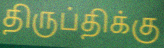
திருப்திக்கு